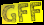
GFF